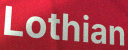
Lothian